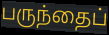
பருந்தைப்